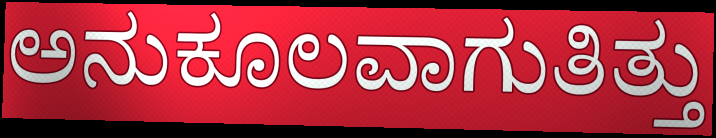
ಅನುಕೂಲವಾಗುತಿತ್ತು